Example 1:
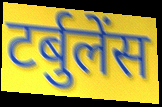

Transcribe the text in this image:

टर्बुलेंस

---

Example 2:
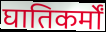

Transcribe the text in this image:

घातिकर्मों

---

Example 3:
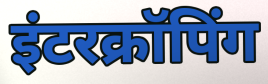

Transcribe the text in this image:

इंटरक्रॉपिंग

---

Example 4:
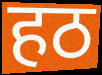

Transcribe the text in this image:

हठ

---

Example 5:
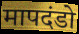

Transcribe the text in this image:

मापदंडो